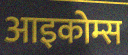
आइकोम्स